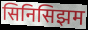
सिनिसिझम